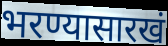
भरण्यासारखं